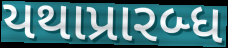
યથાપ્રારબ્ધ